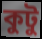
কুটু